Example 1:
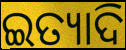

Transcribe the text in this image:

ଇତ୍ଯାଦି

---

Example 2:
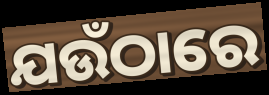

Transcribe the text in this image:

ଯଉଁଠାରେ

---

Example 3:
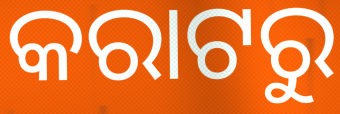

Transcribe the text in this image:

କରାଟରୁ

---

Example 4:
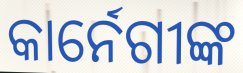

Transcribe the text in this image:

କାର୍ନେଗୀଙ୍କ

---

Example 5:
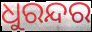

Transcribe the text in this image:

ଧୁରନ୍ଦର